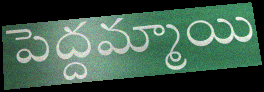
పెద్దమ్మాయి